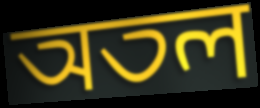
অতল